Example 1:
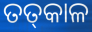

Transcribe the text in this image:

ତତ୍‌କାଳ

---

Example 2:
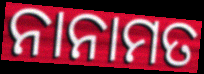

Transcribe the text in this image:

ନାନାମତ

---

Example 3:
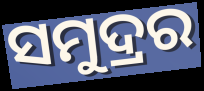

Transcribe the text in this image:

ସମୁଦ୍ରର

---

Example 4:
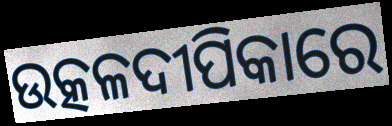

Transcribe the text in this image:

ଉତ୍କଳଦୀପିକାରେ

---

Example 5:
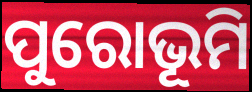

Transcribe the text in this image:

ପୁରୋଭୂମି